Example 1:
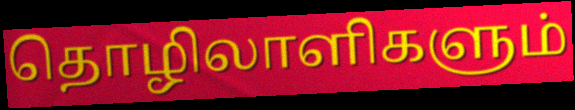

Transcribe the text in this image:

தொழிலாளிகளும்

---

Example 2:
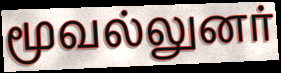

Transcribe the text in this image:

மூவல்லுனர்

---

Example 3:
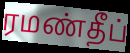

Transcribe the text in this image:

ரமண்தீப்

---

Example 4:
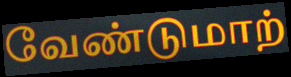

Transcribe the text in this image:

வேண்டுமாற்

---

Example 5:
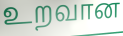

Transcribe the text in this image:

உறவான